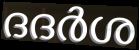
ദദർശ